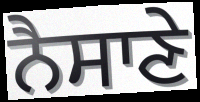
ਨੈਸਾਣੇ